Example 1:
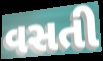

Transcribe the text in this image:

વસતી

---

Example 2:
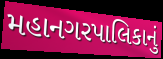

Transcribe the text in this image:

મહાનગરપાલિકાનું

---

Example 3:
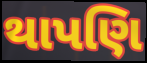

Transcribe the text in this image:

થાપણિ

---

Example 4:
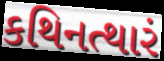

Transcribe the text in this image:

કથિનત્થારં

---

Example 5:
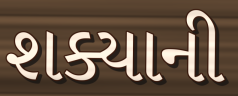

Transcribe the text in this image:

શક્યાની